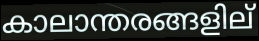
കാലാന്തരങ്ങളില്